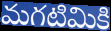
మగటిమికి